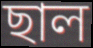
ছাল